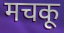
मचकू